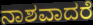
ನಾಶವಾದರೆ